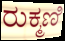
ರುಕ್ಮಣಿ